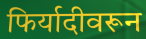
फिर्यादीवरून